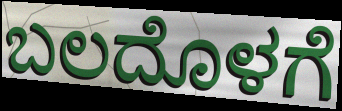
ಬಲದೊಳಗೆ